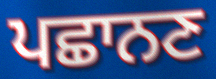
ਪਛਾਨਣ